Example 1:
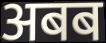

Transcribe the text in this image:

अबब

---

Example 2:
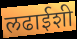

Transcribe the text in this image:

लढाईशी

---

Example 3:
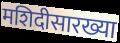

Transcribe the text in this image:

मशिदीसारख्या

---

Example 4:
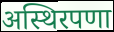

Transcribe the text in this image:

अस्थिरपणा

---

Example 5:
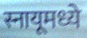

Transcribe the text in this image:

स्नायूमध्ये